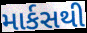
માર્કસથી